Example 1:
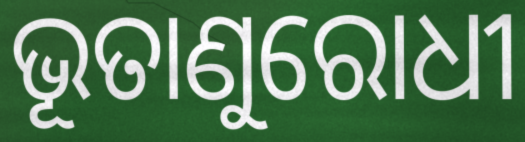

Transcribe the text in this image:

ଭୂତାଣୁରୋଧୀ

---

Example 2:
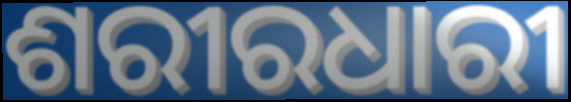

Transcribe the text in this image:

ଶରୀରଧାରୀ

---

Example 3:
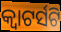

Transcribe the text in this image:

କ୍ୱାଟର୍ସଟି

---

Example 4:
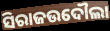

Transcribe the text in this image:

ସିରାଜଉଦୌଲା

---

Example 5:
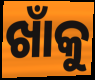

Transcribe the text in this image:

ଖାଁକୁ